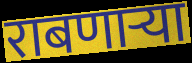
राबणार्‍या